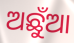
ଅଛୁଁଆ